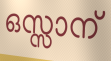
ഒസ്സാന്